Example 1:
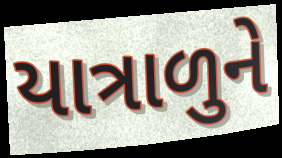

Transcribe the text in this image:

યાત્રાળુને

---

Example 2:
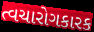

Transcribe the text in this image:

ત્વચારોગકારક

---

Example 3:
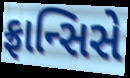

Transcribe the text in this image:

ફ્રાન્સિસે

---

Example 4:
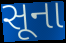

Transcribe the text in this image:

સૂના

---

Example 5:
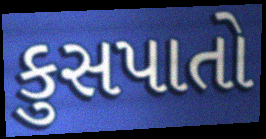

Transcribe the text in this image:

કુસપાતો